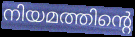
നിയമത്തിന്റെ